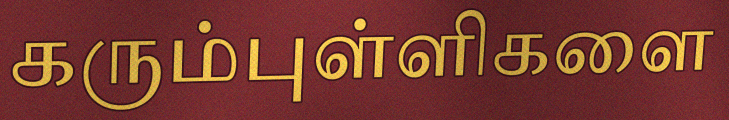
கரும்புள்ளிகளை